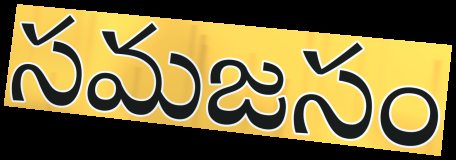
సమజసం